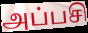
அப்பசி